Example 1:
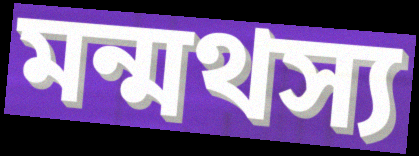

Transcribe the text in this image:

মন্মথস্য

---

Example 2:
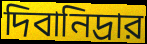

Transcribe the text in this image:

দিবানিদ্রার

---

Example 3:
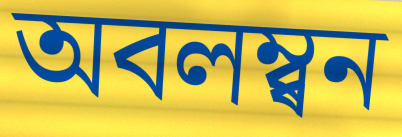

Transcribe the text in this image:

অবলম্ব্বন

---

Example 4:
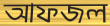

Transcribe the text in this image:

আফজল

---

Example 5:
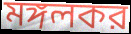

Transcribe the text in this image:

মঙ্গলকর